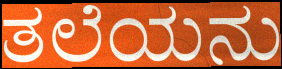
ತಲೆಯನು